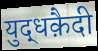
युद्धक़ैदी